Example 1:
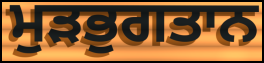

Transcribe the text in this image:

ਮੁੜਭੁਗਤਾਨ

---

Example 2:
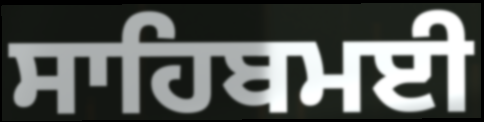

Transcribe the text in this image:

ਸਾਹਿਬਮਈ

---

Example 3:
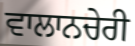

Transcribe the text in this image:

ਵਾਲਾਨਚੇਰੀ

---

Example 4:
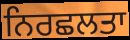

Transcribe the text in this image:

ਨਿਰਛਲਤਾ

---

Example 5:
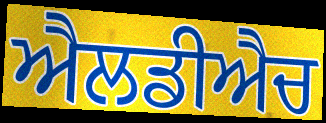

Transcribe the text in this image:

ਐਲਡੀਐਚ